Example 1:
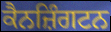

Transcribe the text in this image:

ਕੈਨਜ਼ਿੰਗਟਨ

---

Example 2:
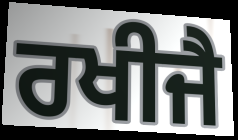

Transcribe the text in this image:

ਰਖੀਜੈ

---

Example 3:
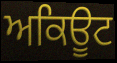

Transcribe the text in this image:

ਅਕਿਊਟ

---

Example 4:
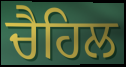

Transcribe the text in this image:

ਚੈਹਿਲ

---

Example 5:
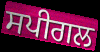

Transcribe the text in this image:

ਸਪੀਗਲ